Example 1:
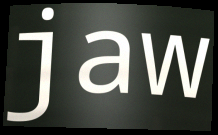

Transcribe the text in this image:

jaw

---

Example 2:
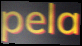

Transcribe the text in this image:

pela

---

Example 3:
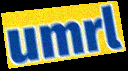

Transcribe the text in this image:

umrl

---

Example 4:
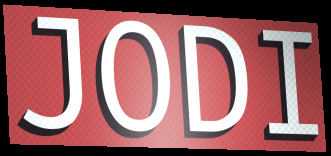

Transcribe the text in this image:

JODI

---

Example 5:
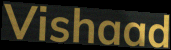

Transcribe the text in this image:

Vishaad